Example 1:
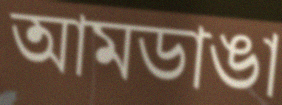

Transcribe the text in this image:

আমডাঙা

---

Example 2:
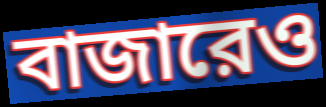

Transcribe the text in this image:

বাজারেও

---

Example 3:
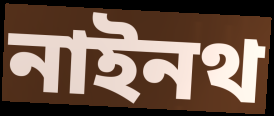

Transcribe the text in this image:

নাইনথ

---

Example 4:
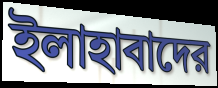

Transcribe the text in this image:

ইলাহাবাদের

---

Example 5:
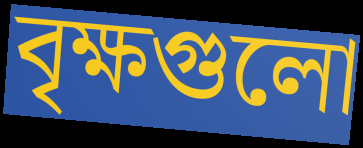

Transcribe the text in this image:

বৃক্ষগুলো